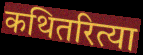
कथितरित्या